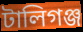
টালিগঞ্জ